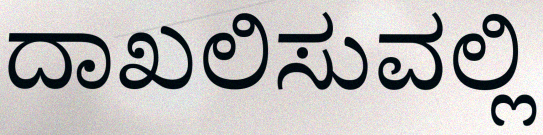
ದಾಖಲಿಸುವಲ್ಲಿ